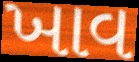
ખાવ